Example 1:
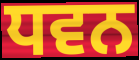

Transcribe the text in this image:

ਧਵਨ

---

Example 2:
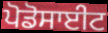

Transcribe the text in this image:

ਪੋਡੋਸਾਈਟ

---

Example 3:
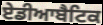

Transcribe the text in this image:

ਏਡੀਆਬੈਟਿਕ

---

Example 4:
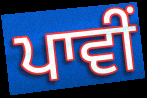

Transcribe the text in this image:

ਪਾਵੀਂ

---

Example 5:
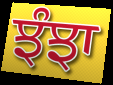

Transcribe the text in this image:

ਝੰਝਾ